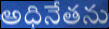
అధినేతను